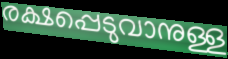
രക്ഷപ്പെടുവാനുള്ള